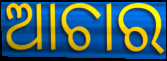
ଆଚାର